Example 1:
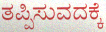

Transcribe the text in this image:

ತಪ್ಪಿಸುವದಕ್ಕೆ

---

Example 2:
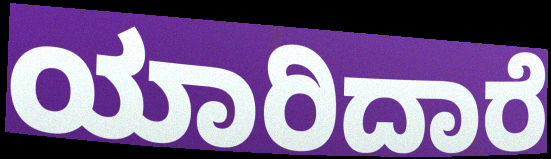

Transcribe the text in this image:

ಯಾರಿದಾರೆ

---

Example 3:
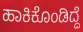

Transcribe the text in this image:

ಹಾಕಿಕೊಂಡಿದ್ದೆ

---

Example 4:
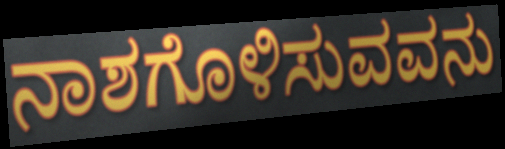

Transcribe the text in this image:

ನಾಶಗೊಳಿಸುವವನು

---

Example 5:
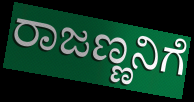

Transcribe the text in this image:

ರಾಜಣ್ಣನಿಗೆ